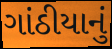
ગાંઠીયાનું